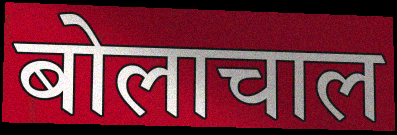
बोलाचाल